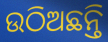
ଉଠିଅଛନ୍ତି